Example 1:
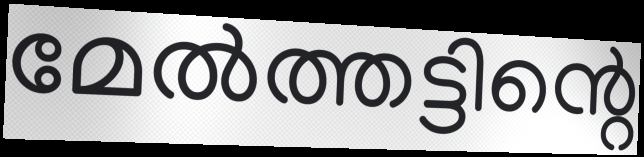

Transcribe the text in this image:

മേൽത്തട്ടിന്റെ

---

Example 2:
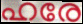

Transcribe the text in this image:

ഹരേ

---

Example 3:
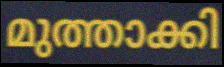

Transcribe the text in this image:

മുത്താക്കി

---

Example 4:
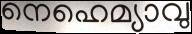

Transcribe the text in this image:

നെഹെമ്യാവു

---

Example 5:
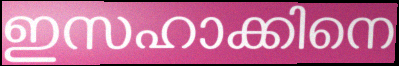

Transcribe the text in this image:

ഇസഹാക്കിനെ